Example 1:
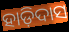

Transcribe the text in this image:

ହାଡ଼ିଦାସ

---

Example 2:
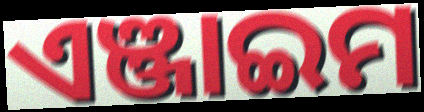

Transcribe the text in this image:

ଏଞ୍ଜାଇମ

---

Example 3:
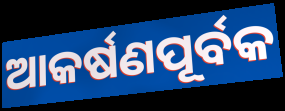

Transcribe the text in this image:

ଆକର୍ଷଣପୂର୍ବକ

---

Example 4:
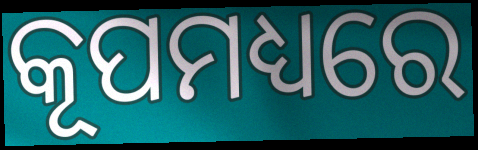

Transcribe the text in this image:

କୂପମଧ୍ୟରେ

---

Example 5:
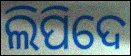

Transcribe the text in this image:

ଲିପିଦେ